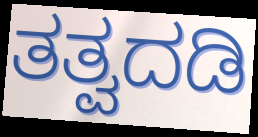
ತತ್ವದಡಿ